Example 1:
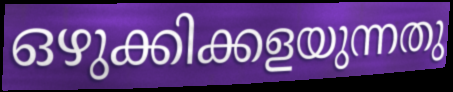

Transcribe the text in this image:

ഒഴുക്കിക്കളയുന്നതു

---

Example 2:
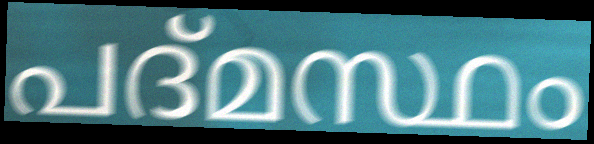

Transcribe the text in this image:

പദ്മസ്ഥം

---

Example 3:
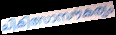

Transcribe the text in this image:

ചികിത്സാസൗകര്യം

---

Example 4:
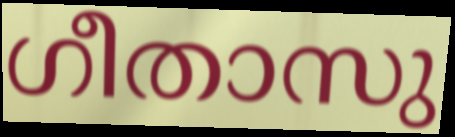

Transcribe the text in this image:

ഗീതാസു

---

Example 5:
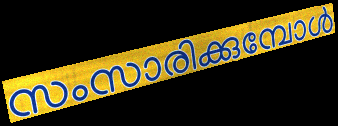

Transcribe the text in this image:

സംസാരിക്കുമ്പോൾ